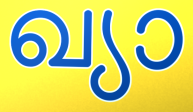
ഖ്യാ